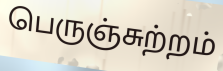
பெருஞ்சுற்றம்